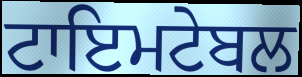
ਟਾਇਮਟੇਬਲ